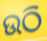
ଉଠି